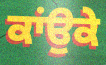
ਕਾਂਉਕੇ